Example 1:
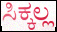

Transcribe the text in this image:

ಸಿಕ್ಕಲ್ಲ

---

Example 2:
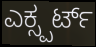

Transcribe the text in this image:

ಎಕ್ಸ್ಪರ್ಟ್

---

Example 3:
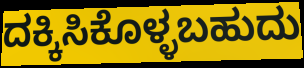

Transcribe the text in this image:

ದಕ್ಕಿಸಿಕೊಳ್ಳಬಹುದು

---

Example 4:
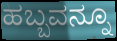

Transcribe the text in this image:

ಹಬ್ಬವನ್ನೂ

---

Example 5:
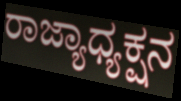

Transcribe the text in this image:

ರಾಜ್ಯಾಧ್ಯಕ್ಷನ